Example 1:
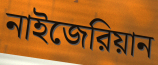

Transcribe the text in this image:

নাইজেরিয়ান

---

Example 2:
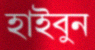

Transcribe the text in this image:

হাইবুন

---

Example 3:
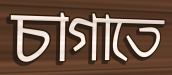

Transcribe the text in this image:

চাগাতে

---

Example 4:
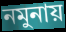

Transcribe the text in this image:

নমুনায়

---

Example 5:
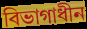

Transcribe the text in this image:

বিভাগাধীন